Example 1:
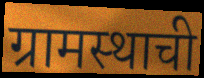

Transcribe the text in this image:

ग्रामस्थाची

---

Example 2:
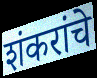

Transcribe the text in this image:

शंकरांचे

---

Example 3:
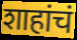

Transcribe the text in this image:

शाहांचं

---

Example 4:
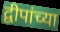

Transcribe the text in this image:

द्वीपांच्या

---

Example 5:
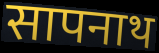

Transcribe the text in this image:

सापनाथ